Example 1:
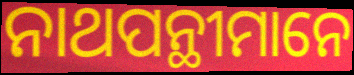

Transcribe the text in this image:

ନାଥପନ୍ଥୀମାନେ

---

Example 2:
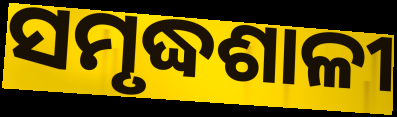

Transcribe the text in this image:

ସମୃଦ୍ଧଶାଳୀ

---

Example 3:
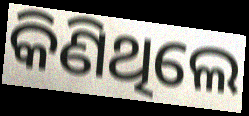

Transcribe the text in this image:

କିଣିଥିଲେ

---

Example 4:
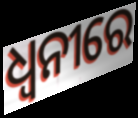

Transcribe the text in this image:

ଧ୍ଵନୀରେ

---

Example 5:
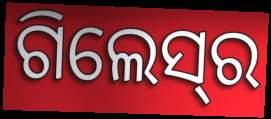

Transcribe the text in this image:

ଗିଲେସ୍‍ର